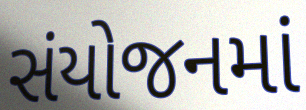
સંયોજનમાં